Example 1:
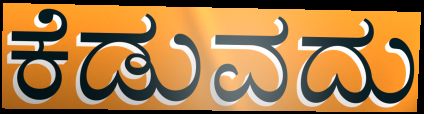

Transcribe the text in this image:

ಕೆಡುವದು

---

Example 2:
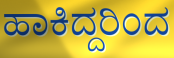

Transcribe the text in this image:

ಹಾಕಿದ್ದರಿಂದ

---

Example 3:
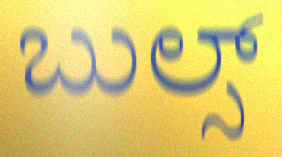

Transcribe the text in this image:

ಬುಲ್ಸ್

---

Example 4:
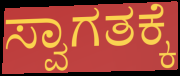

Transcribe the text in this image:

ಸ್ವಾಗತಕ್ಕೆ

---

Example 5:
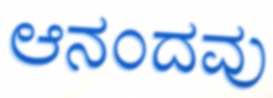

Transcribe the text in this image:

ಆನಂದವು